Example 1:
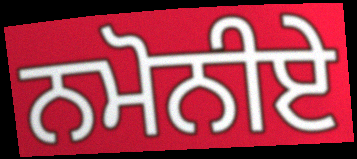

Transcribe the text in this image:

ਨਮੋਨੀਏ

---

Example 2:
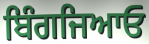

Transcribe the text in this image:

ਬਿੰਗਜਿਆਓ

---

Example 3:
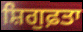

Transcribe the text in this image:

ਸ਼ਿਗੁਫ਼ਤਾ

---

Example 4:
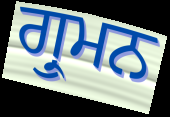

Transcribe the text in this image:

ਗ੍ਰੁਮਨ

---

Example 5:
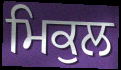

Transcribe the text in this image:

ਮਿਕੁਲ